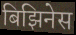
बिझिनेस